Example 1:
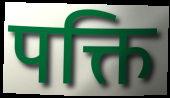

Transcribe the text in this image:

पक्ति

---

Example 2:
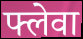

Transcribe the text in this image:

फ्लेवा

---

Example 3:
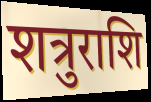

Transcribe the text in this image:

शत्रुराशि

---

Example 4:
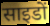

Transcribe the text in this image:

साइडों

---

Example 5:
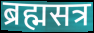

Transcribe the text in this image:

ब्रह्मसत्र